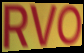
RVO